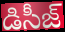
డిసీజ్